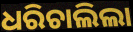
ଧରିଚାଲିଲା